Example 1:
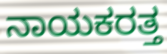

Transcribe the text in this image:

ನಾಯಕರತ್ತ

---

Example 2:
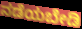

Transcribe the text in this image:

ನಡೆಯಬೇಡಿ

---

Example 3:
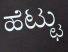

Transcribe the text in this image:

ಹೆಟ್ಟು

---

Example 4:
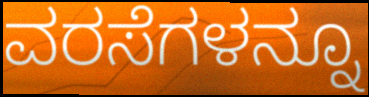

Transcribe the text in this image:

ವರಸೆಗಳನ್ನೂ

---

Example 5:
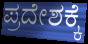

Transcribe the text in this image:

ಪ್ರದೇಶಕ್ಕೆ